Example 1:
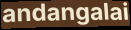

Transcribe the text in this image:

andangalai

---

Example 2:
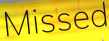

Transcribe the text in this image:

Missed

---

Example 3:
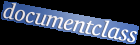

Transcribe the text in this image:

documentclass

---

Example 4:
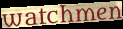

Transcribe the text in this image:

watchmen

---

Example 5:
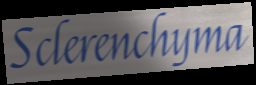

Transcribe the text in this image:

Sclerenchyma